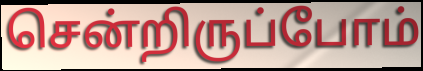
சென்றிருப்போம்